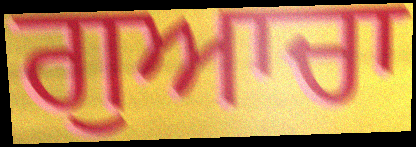
ਗੁਆਚਾ